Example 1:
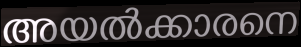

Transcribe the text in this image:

അയൽക്കാരനെ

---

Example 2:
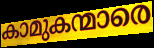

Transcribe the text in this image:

കാമുകന്മാരെ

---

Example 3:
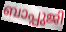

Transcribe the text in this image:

ബാപ്പുജി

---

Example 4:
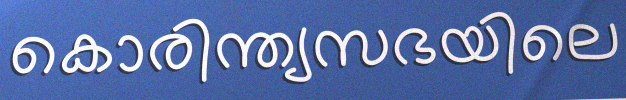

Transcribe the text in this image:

കൊരിന്ത്യസഭയിലെ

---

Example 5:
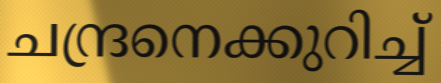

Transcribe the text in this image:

ചന്ദ്രനെക്കുറിച്ച്